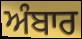
ਅੰਬਾਰ